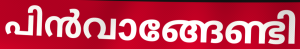
പിൻവാങ്ങേണ്ടി